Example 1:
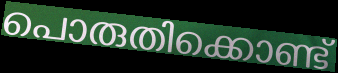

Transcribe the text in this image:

പൊരുതിക്കൊണ്ട്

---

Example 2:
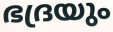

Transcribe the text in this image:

ഭദ്രയും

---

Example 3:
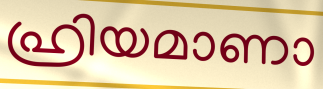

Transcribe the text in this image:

ഹ്രിയമാണാ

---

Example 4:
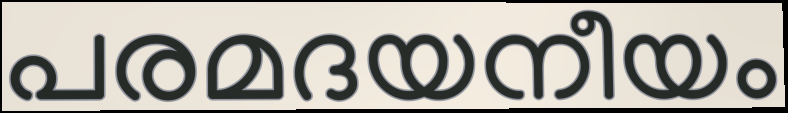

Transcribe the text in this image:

പരമദയനീയം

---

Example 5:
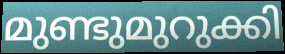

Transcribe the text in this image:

മുണ്ടുമുറുക്കി